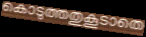
കൊടുത്തതുകൂടാതെ